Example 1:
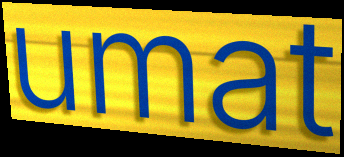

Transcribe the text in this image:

umat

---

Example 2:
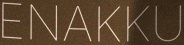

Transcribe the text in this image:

ENAKKU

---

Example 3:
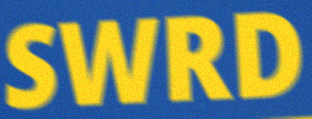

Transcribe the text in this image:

SWRD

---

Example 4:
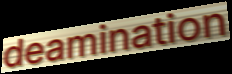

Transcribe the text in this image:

deamination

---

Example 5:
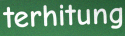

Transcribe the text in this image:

terhitung